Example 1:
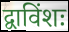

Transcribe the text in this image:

द्वाविंशः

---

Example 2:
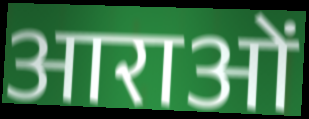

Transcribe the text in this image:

आराओं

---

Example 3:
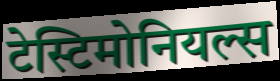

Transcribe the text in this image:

टेस्टिमोनियल्स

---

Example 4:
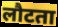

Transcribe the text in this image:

लौटता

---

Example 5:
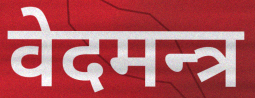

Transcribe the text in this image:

वेदमन्त्र